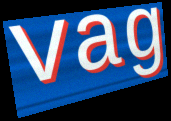
vag